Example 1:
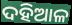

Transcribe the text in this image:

ଦହିଆଳ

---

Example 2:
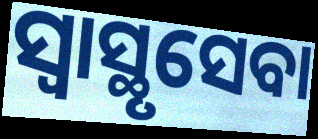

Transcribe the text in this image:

ସ୍ୱାସ୍ଥୃସେବା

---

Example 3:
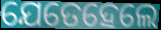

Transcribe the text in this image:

ଯେତେହେଲେ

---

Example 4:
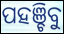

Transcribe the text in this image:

ପହଞ୍ଚିବୁ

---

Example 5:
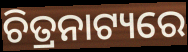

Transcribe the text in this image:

ଚିତ୍ରନାଟ୍ୟରେ